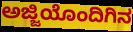
ಅಜ್ಜಿಯೊಂದಿಗಿನ